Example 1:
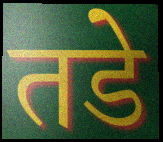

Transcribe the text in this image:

तडे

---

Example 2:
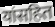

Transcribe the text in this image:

यांसहित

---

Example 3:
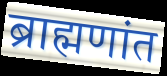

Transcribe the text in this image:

ब्राह्मणांत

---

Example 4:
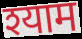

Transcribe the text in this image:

श्याम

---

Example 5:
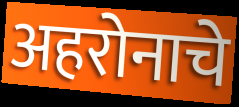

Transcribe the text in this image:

अहरोनाचे